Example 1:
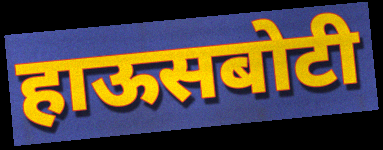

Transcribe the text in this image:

हाऊसबोटी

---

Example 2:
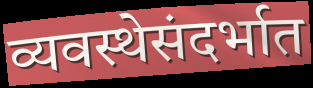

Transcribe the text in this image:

व्यवस्थेसंदर्भात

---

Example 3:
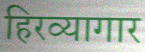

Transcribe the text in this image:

हिरव्यागार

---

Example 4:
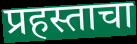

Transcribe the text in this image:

प्रहस्ताचा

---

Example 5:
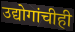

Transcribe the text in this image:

उद्योगांचीही